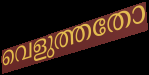
വെളുത്തതോ